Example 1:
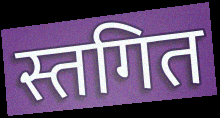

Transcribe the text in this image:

स्तगित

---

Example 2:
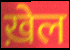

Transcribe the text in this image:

ख़ेल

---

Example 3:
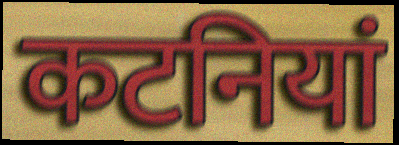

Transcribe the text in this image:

कटनियां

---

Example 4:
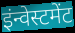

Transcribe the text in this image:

इंन्वेस्टमेंट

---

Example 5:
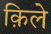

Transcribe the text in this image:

क़िले